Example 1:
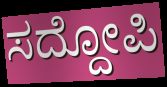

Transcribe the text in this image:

ಸದ್ದೋಪಿ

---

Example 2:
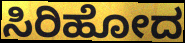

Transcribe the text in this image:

ಸಿರಿಹೋದ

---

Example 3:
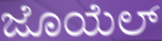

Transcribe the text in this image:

ಜೊಯೆಲ್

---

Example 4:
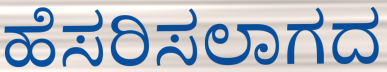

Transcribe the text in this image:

ಹೆಸರಿಸಲಾಗದ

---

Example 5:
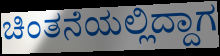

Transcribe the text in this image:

ಚಿಂತನೆಯಲ್ಲಿದ್ದಾಗ